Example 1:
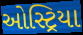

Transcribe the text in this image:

ઓસ્ટ્રિયા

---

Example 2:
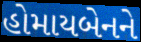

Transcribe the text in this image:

હોમાયબેનને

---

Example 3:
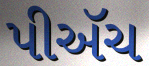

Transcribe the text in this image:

પીઍચ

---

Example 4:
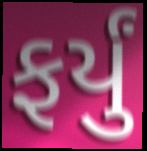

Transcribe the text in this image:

ફર્યું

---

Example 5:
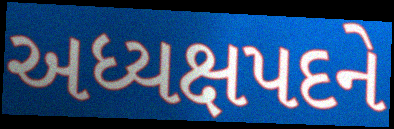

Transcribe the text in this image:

અધ્યક્ષપદને